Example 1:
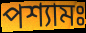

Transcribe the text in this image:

পশ্যামঃ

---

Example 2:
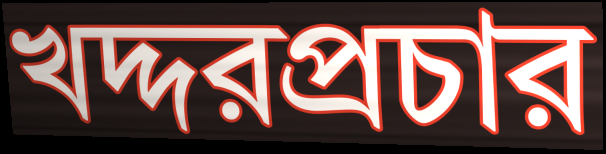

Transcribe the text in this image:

খদ্দরপ্রচার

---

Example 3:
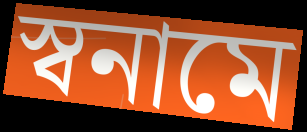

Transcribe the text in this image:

স্বনামে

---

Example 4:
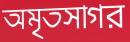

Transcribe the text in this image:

অমৃতসাগর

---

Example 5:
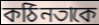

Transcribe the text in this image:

কঠিনতাকে